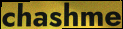
chashme